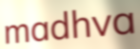
madhva